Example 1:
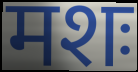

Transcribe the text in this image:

मशः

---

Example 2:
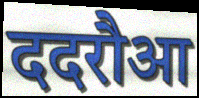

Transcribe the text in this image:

ददरौआ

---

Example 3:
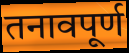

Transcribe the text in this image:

तनावपूर्ण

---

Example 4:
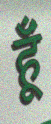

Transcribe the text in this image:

हूंँ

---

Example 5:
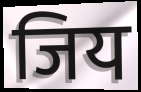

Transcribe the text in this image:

जिय